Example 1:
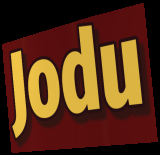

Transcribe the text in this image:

Jodu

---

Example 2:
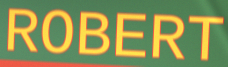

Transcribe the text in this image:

ROBERT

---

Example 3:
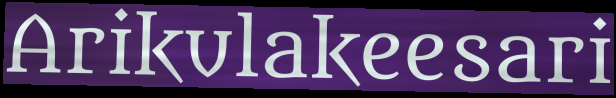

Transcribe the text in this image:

Arikulakeesari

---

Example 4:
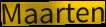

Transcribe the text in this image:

Maarten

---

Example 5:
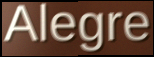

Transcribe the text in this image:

Alegre